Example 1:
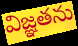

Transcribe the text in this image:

విజ్ఞతను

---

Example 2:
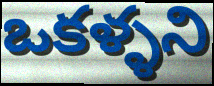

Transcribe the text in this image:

ఒకళ్ళని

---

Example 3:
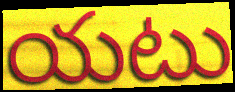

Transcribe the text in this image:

యటు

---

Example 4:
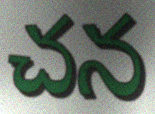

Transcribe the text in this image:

చన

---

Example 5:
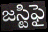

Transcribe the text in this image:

జస్టిఫై